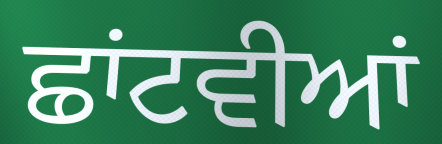
ਛਾਂਟਵੀਆਂ